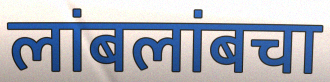
लांबलांबचा